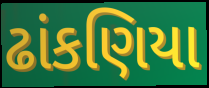
ઢાંકણિયા